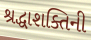
શ્રદ્ધાશક્તિની